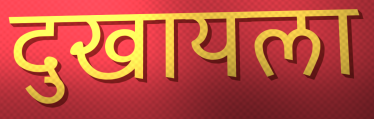
दुखायला